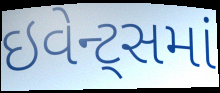
ઇવેન્ટ્સમાં